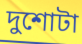
দুশোটা